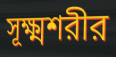
সূক্ষ্মশরীর